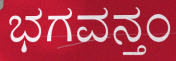
ಭಗವನ್ತಂ